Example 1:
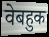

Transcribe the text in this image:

वेबहुक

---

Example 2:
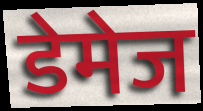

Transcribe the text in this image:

डेमेज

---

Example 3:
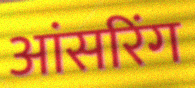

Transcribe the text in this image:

आंसरिंग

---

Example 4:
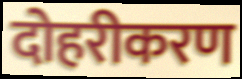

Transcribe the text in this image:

दोहरीकरण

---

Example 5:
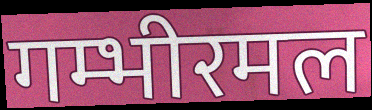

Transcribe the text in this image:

गम्भीरमल